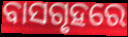
ବାସଗୃହରେ